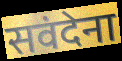
सवंदेना